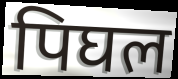
पिघल